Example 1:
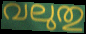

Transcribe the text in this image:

വലുതു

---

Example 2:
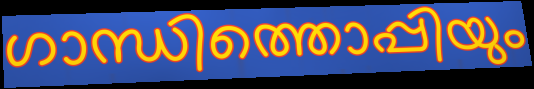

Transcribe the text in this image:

ഗാന്ധിത്തൊപ്പിയും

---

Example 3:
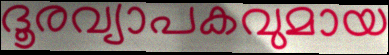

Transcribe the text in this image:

ദൂരവ്യാപകവുമായ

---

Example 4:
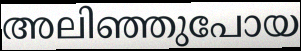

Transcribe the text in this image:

അലിഞ്ഞുപോയ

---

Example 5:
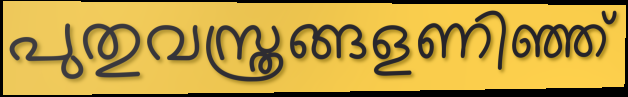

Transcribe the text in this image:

പുതുവസ്ത്രങ്ങളണിഞ്ഞ്